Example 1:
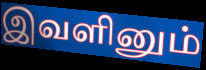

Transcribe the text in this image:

இவளினும்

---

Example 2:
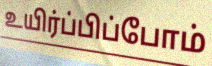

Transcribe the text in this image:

உயிர்ப்பிப்போம்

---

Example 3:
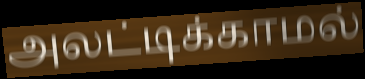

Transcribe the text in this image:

அலட்டிக்காமல்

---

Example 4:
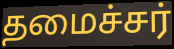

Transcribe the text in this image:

தமைச்சர்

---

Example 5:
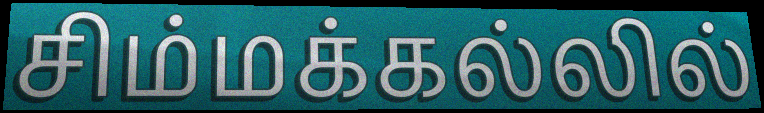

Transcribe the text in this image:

சிம்மக்கல்லில்